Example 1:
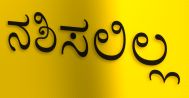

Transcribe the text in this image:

ನಶಿಸಲಿಲ್ಲ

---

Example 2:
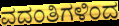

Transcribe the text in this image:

ವದಂತಿಗಳಿಂದ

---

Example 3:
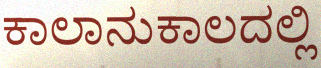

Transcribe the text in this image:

ಕಾಲಾನುಕಾಲದಲ್ಲಿ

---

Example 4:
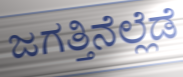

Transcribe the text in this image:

ಜಗತ್ತಿನೆಲ್ಲೆಡೆ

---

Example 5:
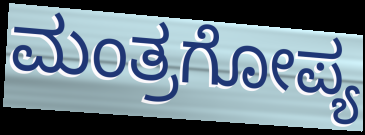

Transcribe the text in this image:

ಮಂತ್ರಗೋಪ್ಯ